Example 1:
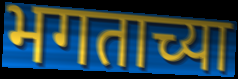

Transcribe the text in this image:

भगताच्या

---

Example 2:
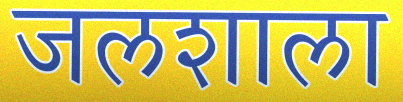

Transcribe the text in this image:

जलशाला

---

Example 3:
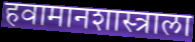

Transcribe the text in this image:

हवामानशास्त्राला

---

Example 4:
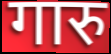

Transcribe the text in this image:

गारु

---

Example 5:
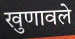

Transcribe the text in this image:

खुणावले